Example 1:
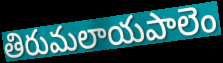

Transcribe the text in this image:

తిరుమలాయపాలెం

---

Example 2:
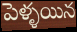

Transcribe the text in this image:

పెళ్ళయిన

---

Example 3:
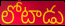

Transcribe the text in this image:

లోటాడు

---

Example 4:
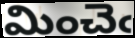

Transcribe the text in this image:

మించెఁ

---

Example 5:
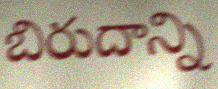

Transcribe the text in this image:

బిరుదాన్ని